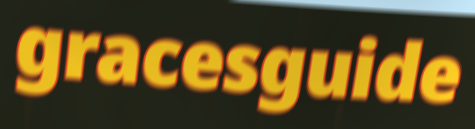
gracesguide